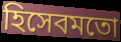
হিসেবমতো